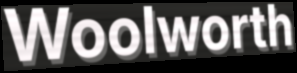
Woolworth